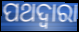
ପଥଦ୍ଵାରା